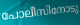
പോലീസിനോടു